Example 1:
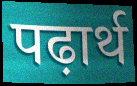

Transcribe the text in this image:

पढ़ार्थ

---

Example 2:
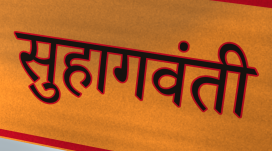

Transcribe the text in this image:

सुहागवंती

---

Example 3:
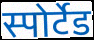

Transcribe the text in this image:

स्पोर्टेड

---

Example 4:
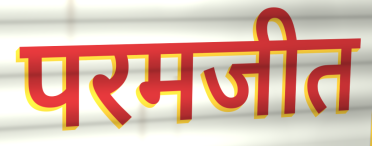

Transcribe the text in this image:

परमजीत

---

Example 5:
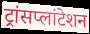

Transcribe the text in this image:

ट्रांसप्लांटेशन